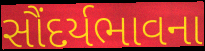
સૌંદર્યભાવના